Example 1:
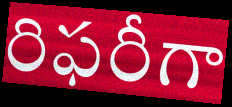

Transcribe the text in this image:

రిఫరీగా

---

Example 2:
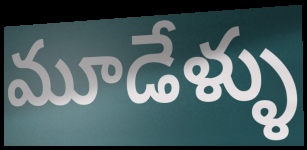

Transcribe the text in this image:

మూడేళ్ళు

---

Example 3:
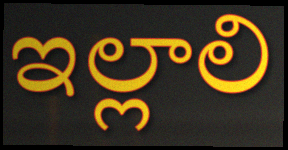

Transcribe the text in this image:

ఇల్లాలి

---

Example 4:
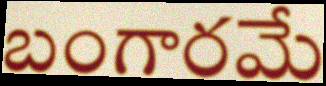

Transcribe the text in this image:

బంగారమే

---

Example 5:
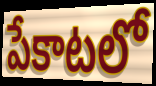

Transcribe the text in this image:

పేకాటలో